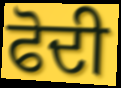
ਫੋਦੀ